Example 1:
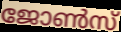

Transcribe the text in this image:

ജോൺസ്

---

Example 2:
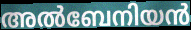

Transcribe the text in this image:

അൽബേനിയൻ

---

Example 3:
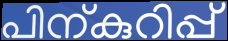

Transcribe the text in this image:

പിന്കുറിപ്പ്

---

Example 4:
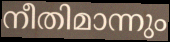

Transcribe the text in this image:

നീതിമാന്നും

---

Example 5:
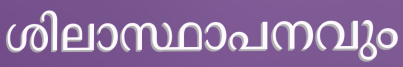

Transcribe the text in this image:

ശിലാസ്ഥാപനവും